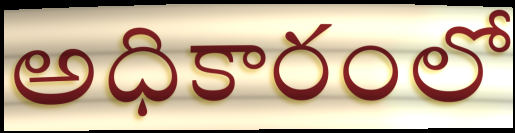
అధికారంలో